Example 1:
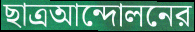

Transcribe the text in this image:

ছাত্রআন্দোলনের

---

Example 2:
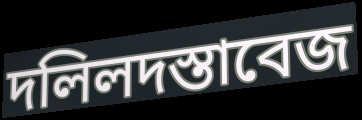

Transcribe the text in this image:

দলিলদস্তাবেজ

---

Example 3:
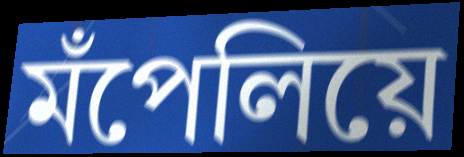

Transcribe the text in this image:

মঁপেলিয়ে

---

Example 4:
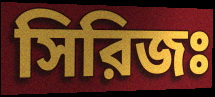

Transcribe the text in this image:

সিরিজঃ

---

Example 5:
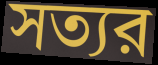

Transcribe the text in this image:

সত্যর